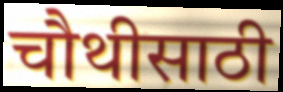
चौथीसाठी